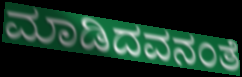
ಮಾಡಿದವನಂತೆ